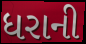
ધરાની